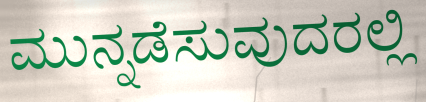
ಮುನ್ನಡೆಸುವುದರಲ್ಲಿ